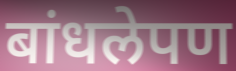
बांधलेपण